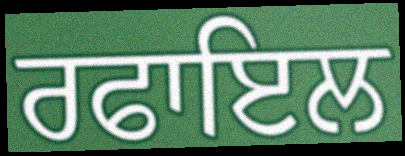
ਰਫਾਇਲ